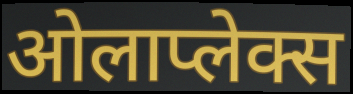
ओलाप्लेक्स